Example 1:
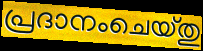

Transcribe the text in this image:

പ്രദാനംചെയ്തു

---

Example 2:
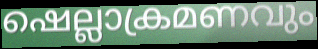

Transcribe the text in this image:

ഷെല്ലാക്രമണവും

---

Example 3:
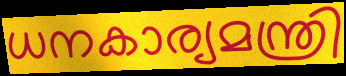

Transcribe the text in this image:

ധനകാര്യമന്ത്രി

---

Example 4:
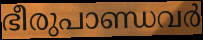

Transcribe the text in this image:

ഭീരുപാണ്ഡവർ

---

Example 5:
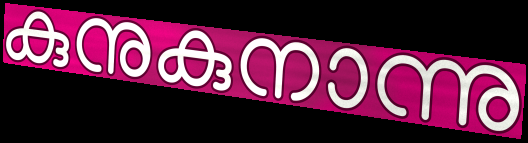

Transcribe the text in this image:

കുനുകുനാന്നു